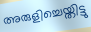
അരുളിച്ചെയ്തിട്ടു